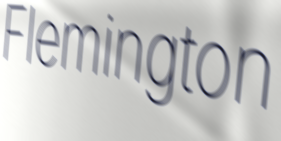
Flemington